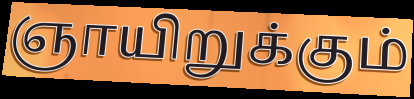
ஞாயிறுக்கும்